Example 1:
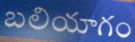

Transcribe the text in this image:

బలియాగం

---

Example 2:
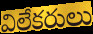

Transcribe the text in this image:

విలేకరులు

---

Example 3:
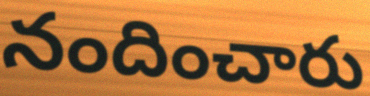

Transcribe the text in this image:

నందించారు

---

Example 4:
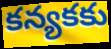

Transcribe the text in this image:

కన్యకకు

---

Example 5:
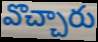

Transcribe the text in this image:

వొచ్చారు